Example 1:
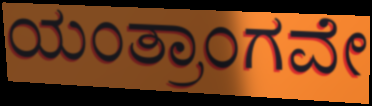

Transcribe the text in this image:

ಯಂತ್ರಾಂಗವೇ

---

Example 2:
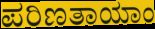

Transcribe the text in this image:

ಪರಿಣತಾಯಾಂ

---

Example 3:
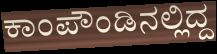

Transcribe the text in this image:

ಕಾಂಪೌಂಡಿನಲ್ಲಿದ್ದ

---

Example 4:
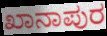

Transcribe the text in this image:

ಖಾನಾಪುರ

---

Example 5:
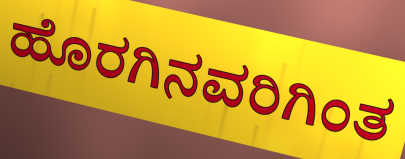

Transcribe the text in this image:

ಹೊರಗಿನವರಿಗಿಂತ